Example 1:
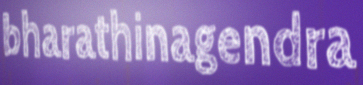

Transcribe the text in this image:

bharathinagendra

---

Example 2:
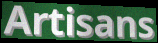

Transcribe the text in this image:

Artisans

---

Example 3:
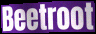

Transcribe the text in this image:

Beetroot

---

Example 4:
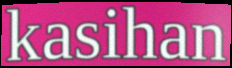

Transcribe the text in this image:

kasihan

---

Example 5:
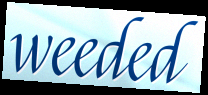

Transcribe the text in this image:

weeded